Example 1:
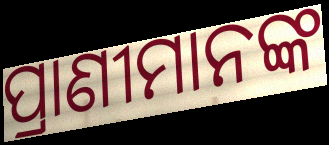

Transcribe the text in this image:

ପ୍ରାଣୀମାନଙ୍କ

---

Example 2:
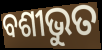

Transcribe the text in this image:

ବଶୀଭୁତ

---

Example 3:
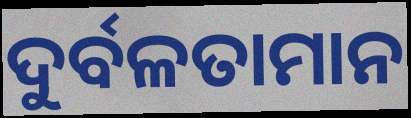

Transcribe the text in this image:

ଦୁର୍ବଳତାମାନ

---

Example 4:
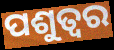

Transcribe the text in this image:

ପଶୁତ୍ୱର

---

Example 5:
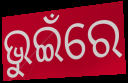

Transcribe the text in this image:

ଭୁଇଁରେ